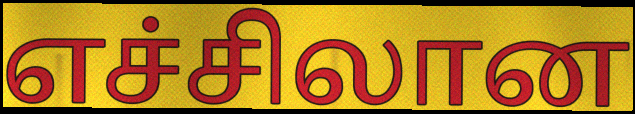
எச்சிலான